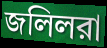
জলিলরা